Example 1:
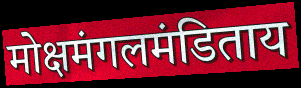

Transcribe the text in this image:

मोक्षमंगलमंडिताय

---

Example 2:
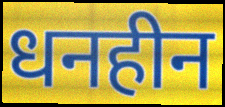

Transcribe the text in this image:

धनहीन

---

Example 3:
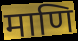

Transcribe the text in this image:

माणि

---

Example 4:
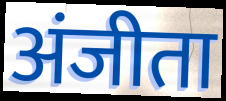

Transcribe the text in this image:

अंजीता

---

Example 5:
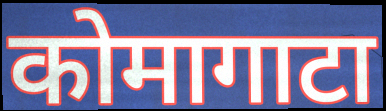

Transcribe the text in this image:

कोमागाटा